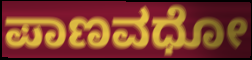
ಪಾಣವಧೋ